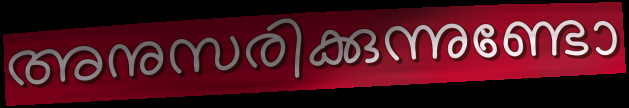
അനുസരിക്കുന്നുണ്ടോ